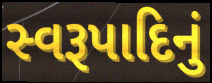
સ્વરૂપાદિનું